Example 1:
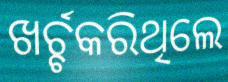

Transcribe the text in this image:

ଖର୍ଚ୍ଚକରିଥିଲେ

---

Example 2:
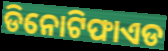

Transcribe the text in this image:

ଡିନୋଟିଫାଏଡ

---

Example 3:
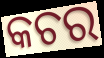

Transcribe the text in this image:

କଚର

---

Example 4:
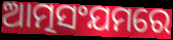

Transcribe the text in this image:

ଆତ୍ମସଂଯମରେ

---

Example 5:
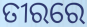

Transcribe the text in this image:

ତୀରରେ